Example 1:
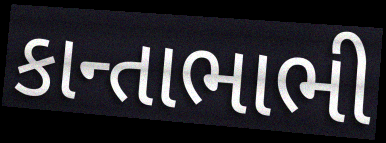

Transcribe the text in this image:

કાન્તાભાભી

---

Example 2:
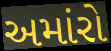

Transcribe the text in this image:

અમાંરો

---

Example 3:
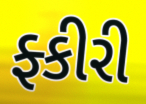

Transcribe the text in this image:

ફ્કીરી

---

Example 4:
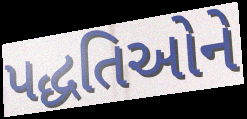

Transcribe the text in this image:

પદ્ધતિઓને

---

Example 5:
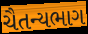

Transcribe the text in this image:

ચૈતન્યભાગ